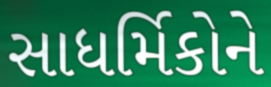
સાધર્મિકોને